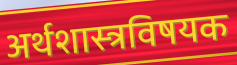
अर्थशास्त्रविषयक